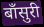
बाँसुरी